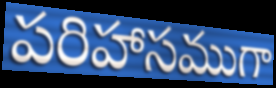
పరిహాసముగా